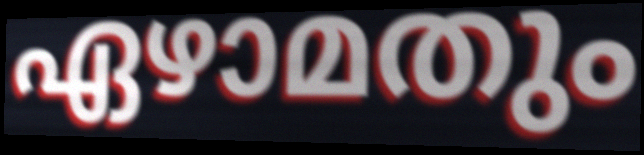
ഏഴാമതും